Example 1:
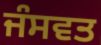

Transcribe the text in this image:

ਜੰਸਵਤ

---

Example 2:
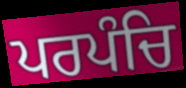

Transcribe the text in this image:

ਪਰਪੰਚਿ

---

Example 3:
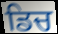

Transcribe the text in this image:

ਡਿਚ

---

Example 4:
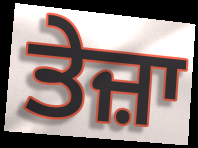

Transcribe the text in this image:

ਤੇਜ਼ਾ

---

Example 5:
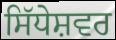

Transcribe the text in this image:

ਸਿੱਧੇਸ਼ਵਰ